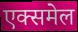
एक्समेल